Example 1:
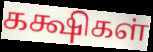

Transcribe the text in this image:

கக்ஷிகள்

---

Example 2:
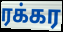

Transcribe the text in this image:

ரக்கர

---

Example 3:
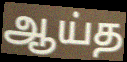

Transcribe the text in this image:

ஆய்த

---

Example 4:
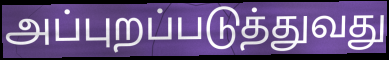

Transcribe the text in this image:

அப்புறப்படுத்துவது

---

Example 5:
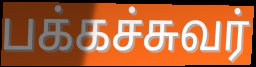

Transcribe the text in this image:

பக்கச்சுவர்